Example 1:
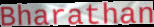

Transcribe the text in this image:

Bharathan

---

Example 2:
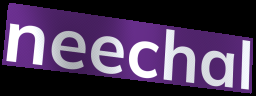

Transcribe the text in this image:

neechal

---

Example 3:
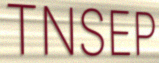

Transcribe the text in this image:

TNSEP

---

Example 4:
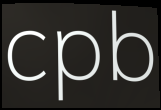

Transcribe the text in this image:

cpb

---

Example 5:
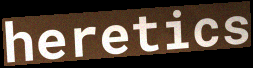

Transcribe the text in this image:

heretics